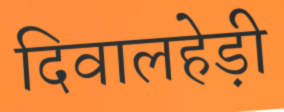
दिवालहेड़ी